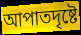
আপাতদৃষ্টে